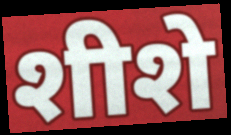
शीशे